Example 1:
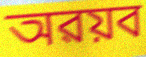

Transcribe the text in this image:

অৱয়ব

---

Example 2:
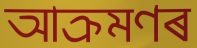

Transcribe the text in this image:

আক্ৰমণৰ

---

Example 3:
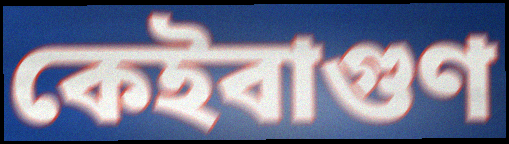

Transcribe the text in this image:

কেইবাগুণ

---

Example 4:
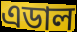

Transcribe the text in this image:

এডাল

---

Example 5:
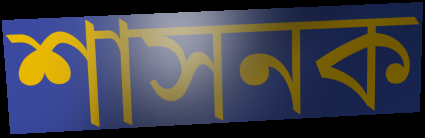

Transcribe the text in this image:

শাসনক